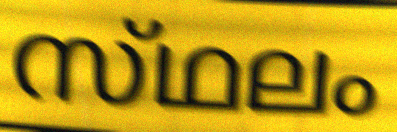
സ്‌ഥലം